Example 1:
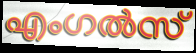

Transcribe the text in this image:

എംഗൽസ്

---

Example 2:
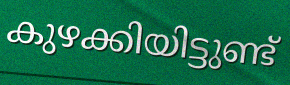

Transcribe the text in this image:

കുഴക്കിയിട്ടുണ്ട്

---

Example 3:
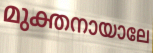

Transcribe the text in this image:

മുക്തനായാലേ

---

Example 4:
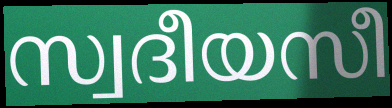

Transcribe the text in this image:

സ്വദീയസീ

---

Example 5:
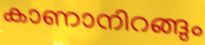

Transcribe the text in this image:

കാണാനിറങ്ങും